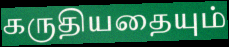
கருதியதையும்